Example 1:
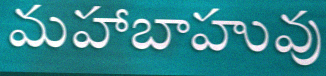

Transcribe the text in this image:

మహాబాహువు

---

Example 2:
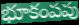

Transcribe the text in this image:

భూకంపపు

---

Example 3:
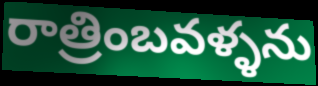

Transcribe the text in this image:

రాత్రింబవళ్ళను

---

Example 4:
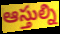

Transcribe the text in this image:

ఆస్తుల్ని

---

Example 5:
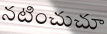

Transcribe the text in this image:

నటించుచూ